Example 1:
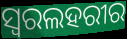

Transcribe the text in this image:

ସ୍ୱରଲହରୀର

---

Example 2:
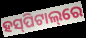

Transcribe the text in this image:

ହସ୍‌ପିଟାଲ୍‌ରେ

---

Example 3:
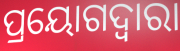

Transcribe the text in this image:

ପ୍ରୟୋଗଦ୍ୱାରା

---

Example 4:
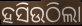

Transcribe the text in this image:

ହସିଉଠିଲା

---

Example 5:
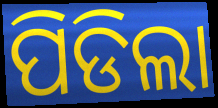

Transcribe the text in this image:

ପିଡିଲା